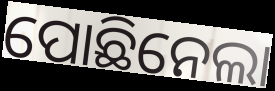
ପୋଛିନେଲା